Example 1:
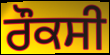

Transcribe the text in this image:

ਰੌਕਸੀ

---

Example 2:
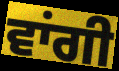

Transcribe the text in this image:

ਵਾਂਗੀ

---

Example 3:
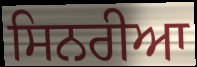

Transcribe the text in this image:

ਸਿਨਰੀਆ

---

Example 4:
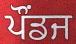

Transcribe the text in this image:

ਪੌਂਡਜ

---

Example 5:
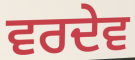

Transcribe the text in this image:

ਵਰਦੇਵ